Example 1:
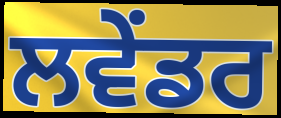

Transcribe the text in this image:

ਲਵੇਂਡਰ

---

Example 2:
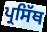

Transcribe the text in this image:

ਪ੍ਰਸਿੱਥ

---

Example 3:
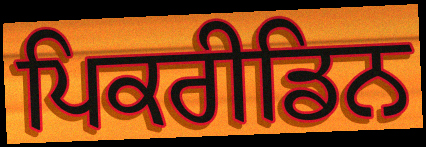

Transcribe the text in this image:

ਪਿਕਰੀਡਿਨ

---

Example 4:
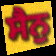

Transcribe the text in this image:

ਸੈਨੁ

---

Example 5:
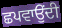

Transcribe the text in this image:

ਛਪਵਾਉਂਦੀ